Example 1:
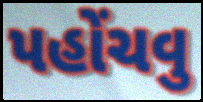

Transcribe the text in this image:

પહોંચવુ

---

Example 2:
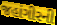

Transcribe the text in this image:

જહાંગીરની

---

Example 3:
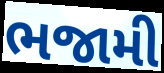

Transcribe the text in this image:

ભજામી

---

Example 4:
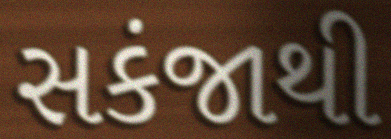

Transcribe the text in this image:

સકંજાથી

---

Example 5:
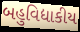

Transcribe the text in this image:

બહુવિદ્યાકીય